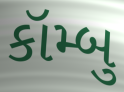
કૉમ્બુ